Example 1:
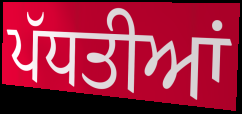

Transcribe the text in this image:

ਪੱਧਤੀਆਂ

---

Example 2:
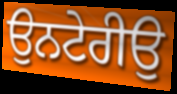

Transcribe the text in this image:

ਉਨਟੇਰੀਉ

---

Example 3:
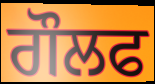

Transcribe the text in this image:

ਗੌਲਫ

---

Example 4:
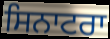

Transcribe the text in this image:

ਸਿਨਾਟਰਾ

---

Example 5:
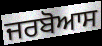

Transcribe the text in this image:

ਜਰਬੋਆਸ